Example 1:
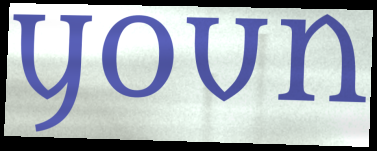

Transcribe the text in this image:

youn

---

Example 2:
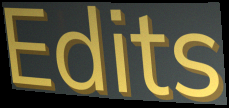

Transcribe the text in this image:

Edits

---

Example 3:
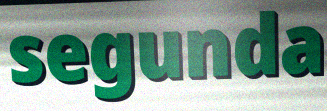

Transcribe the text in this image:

segunda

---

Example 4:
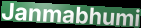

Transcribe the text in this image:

Janmabhumi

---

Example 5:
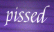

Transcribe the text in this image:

pissed